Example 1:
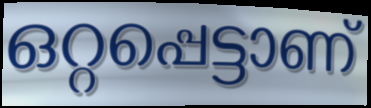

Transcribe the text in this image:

ഒറ്റപ്പെട്ടാണ്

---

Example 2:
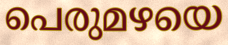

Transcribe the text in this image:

പെരുമഴയെ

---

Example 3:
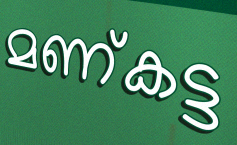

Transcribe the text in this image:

മണ്കട്ട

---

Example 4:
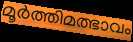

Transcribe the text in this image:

മൂർത്തിമത്ഭാവം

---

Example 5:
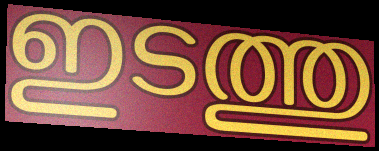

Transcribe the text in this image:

ഇടത്തു